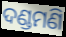
ଦଣ୍ଡମଣି